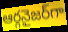
ఆర్గనైజర్‌గా